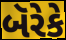
બૅરેકે